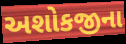
અશોકજીના